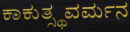
ಕಾಕುತ್ಸ್ಥವರ್ಮನ